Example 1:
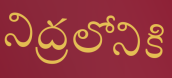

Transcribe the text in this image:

నిద్రలోనికి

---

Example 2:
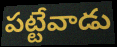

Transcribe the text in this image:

పట్టేవాడు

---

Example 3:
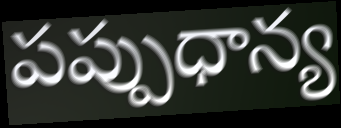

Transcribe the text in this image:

పప్పుధాన్య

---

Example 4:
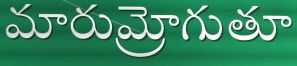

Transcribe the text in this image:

మారుమ్రోగుతూ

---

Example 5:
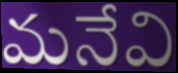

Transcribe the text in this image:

మనేవి